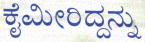
ಕೈಮೀರಿದ್ದನ್ನು